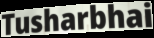
Tusharbhai